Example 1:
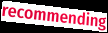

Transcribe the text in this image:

recommending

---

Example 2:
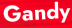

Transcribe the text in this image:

Gandy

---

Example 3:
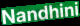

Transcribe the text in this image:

Nandhini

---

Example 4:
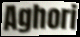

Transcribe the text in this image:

Aghori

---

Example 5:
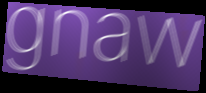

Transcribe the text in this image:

gnaw